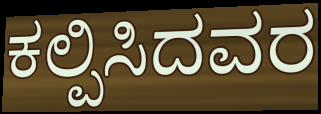
ಕಲ್ಪಿಸಿದವರ